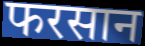
फरसान